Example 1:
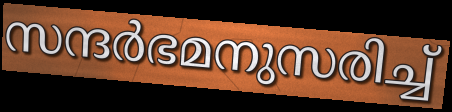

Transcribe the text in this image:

സന്ദർഭമനുസരിച്ച്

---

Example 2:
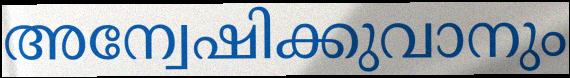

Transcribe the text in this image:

അന്വേഷിക്കുവാനും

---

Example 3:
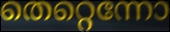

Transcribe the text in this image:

തെറ്റെന്നോ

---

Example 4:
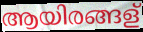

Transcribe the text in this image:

ആയിരങ്ങള്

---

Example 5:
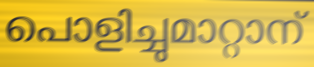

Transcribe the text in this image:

പൊളിച്ചുമാറ്റാന്